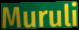
Muruli